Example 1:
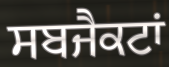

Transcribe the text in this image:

ਸਬਜੈਕਟਾਂ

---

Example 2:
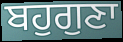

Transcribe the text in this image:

ਬਹੁਗੁਣਾ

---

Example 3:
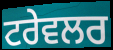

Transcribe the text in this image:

ਟਰੇਵਲਰ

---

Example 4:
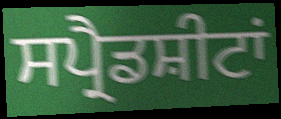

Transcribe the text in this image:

ਸਪ੍ਰੈਡਸ਼ੀਟਾਂ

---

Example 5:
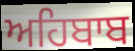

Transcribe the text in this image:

ਅਹਿਬਾਬ